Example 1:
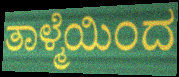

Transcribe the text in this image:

ತಾಳ್ಮೆಯಿಂದ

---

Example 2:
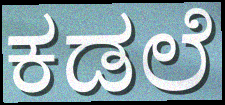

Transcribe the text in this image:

ಕಡಲೆ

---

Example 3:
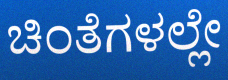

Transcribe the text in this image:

ಚಿಂತೆಗಳಲ್ಲೇ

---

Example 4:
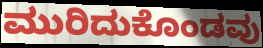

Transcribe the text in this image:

ಮುರಿದುಕೊಂಡವು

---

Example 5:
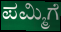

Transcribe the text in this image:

ಪಮ್ಮಿಗೆ